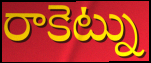
రాకెట్ను